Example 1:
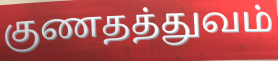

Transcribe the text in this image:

குணதத்துவம்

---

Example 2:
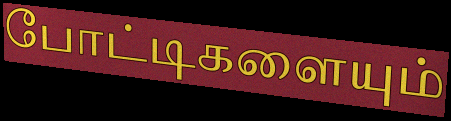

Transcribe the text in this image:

போட்டிகளையும்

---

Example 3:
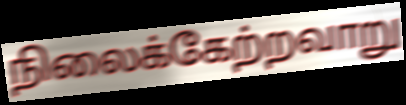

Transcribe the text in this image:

நிலைக்கேற்றவாறு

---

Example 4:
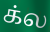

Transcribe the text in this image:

க்ல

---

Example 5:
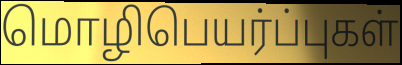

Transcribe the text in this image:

மொழிபெயர்ப்புகள்